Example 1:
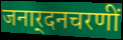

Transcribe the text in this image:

जनार्दनचरणीं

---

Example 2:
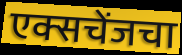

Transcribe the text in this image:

एक्सचेंजचा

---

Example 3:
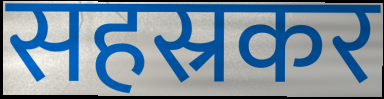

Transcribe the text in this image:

सहस्रकर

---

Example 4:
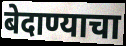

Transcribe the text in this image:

बेदाण्याचा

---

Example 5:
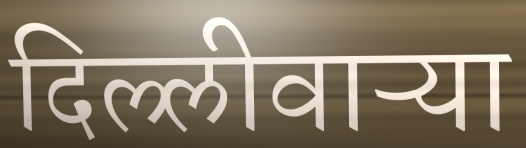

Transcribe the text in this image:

दिल्लीवाऱ्या